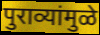
पुराव्यांमुळे